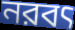
নরবৎ